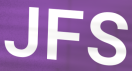
JFS